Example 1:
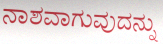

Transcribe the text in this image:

ನಾಶವಾಗುವುದನ್ನು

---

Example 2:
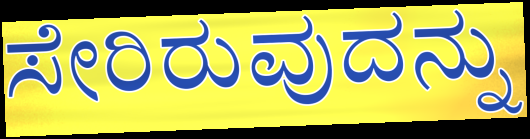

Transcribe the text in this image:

ಸೇರಿರುವುದನ್ನು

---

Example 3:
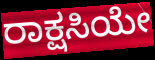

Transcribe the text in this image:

ರಾಕ್ಷಸಿಯೇ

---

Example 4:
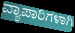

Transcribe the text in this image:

ವ್ಯಾಪಾರಿಗಳಾಗಿ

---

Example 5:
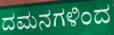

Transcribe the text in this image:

ದಮನಗಳಿಂದ